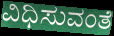
ವಿಧಿಸುವಂತೆ